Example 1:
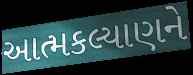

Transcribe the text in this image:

આત્મકલ્યાણને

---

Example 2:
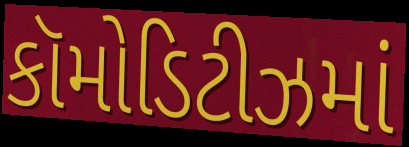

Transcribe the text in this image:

કૉમોડિટીઝમાં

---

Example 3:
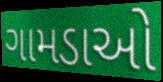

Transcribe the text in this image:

ગામડાઓ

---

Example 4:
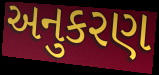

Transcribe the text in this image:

અનુકરણ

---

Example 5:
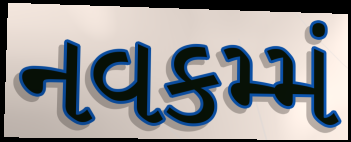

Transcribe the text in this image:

નવકમ્મં